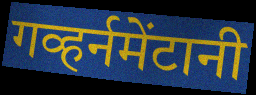
गव्हर्नमेंटानी